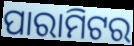
ପାରାମିଟର